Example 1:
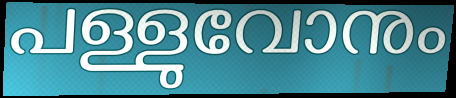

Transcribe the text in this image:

പള്ളുവോനും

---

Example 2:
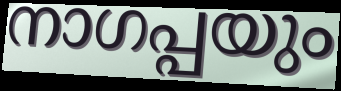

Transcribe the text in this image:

നാഗപ്പയും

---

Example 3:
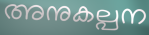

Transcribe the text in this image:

അനുകല്പന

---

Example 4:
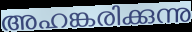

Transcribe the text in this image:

അഹങ്കരിക്കുന്നു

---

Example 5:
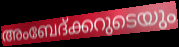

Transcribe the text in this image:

അംബേദ്ക്കറുടെയും